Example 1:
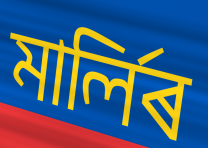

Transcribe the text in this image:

মাৰ্লিৰ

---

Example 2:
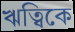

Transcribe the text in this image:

ঋত্বিকে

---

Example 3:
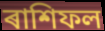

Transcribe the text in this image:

ৰাশিফল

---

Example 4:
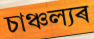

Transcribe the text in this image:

চাঞ্চল্যৰ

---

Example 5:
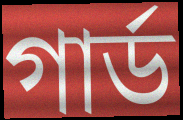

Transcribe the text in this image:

গাৰ্ড